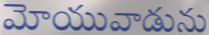
మోయువాడును